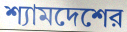
শ্যামদেশের